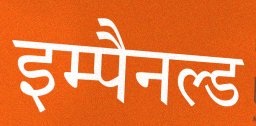
इम्पैनल्ड